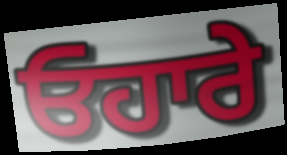
ਓਹਾਰੇ